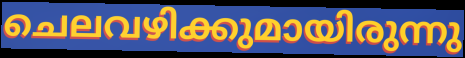
ചെലവഴിക്കുമായിരുന്നു